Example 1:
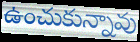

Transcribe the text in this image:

ఉంచుకున్నావు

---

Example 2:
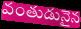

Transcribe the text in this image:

వంతుడునైన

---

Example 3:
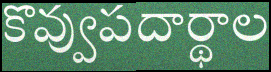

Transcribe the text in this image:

కొవ్వుపదార్థాల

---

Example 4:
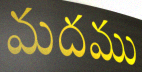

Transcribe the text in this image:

మదము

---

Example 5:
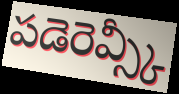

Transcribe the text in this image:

పడెరెవ్స్కీ